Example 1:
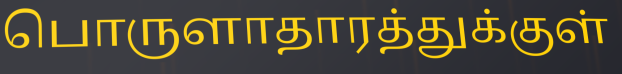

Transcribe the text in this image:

பொருளாதாரத்துக்குள்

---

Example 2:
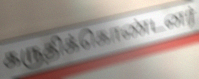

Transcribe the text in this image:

கருதிக்கொண்டனர்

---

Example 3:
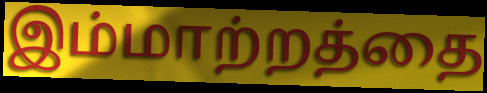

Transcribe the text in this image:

இம்மாற்றத்தை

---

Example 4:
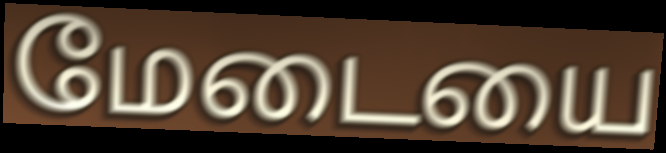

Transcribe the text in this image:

மேடையை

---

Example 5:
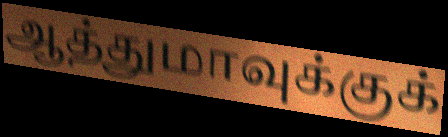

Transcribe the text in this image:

ஆத்துமாவுக்குக்